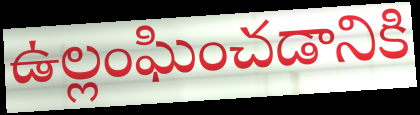
ఉల్లంఘించడానికి